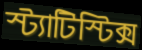
স্ট্যাটিস্টিক্স